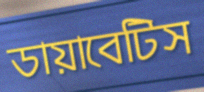
ডায়াবেটিস